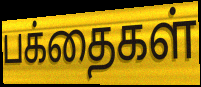
பக்தைகள்